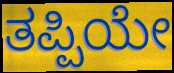
ತಪ್ಪಿಯೇ